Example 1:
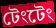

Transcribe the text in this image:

টেংটেং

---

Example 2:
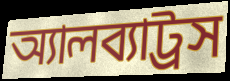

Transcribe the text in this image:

অ্যালব্যাট্রস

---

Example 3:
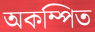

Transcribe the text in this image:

অকম্পিত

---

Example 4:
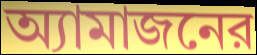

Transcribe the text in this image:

অ্যামাজনের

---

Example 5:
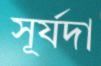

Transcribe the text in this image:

সূর্যদা